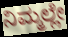
ನಿಮ್ಮಲ್ಲೇ